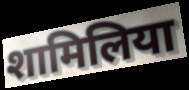
शामिलिया